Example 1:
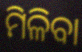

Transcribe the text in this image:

ମିଳିବା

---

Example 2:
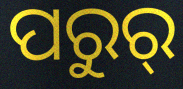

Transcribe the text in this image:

ପରୁର୍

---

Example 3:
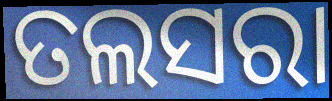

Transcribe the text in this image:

ତଲସରା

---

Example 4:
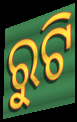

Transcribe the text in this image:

ରୁଟି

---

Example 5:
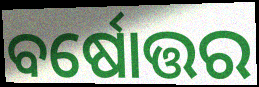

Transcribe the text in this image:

ବର୍ଷୋତ୍ତର